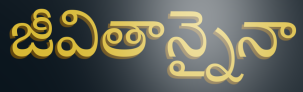
జీవితాన్నైనా